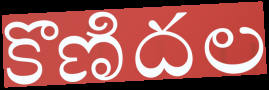
కొణిదల